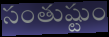
సంతుష్టుం